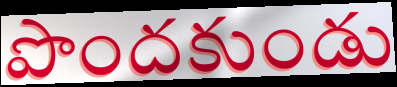
పొందకుండు